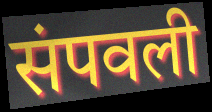
संपवली